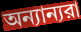
অন্যান্যরা